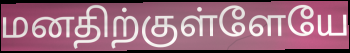
மனதிற்குள்ளேயே